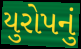
યુરોપનું